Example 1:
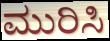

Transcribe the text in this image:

ಮುರಿಸಿ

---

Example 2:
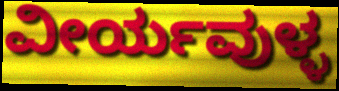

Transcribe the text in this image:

ವೀರ್ಯವುಳ್ಳ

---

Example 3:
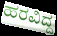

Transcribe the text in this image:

ಹರವಿದ್ದ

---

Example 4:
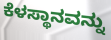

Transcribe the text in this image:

ಕೆಳಸ್ಥಾನವನ್ನು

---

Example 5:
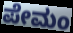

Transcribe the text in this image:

ಪೇಮಂ